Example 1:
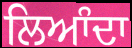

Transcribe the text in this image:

ਲਿਆੰਦਾ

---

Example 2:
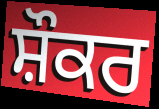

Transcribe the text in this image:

ਸ਼ੌਕਰ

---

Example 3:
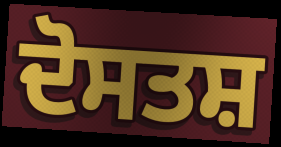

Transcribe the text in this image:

ਦੋਸਤਸ਼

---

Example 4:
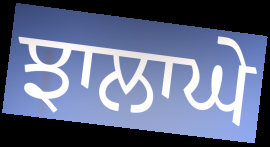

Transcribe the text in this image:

ਝਾਲਾਘੇ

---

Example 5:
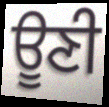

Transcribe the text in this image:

ਊਣੀ